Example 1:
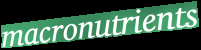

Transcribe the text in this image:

macronutrients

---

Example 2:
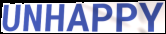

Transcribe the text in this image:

UNHAPPY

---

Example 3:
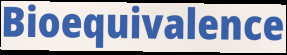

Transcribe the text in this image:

Bioequivalence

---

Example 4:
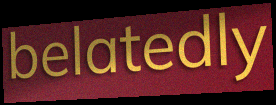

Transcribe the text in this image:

belatedly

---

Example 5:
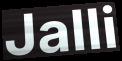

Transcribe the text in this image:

Jalli